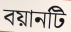
বয়ানটি